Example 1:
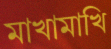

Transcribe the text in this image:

মাখামাখি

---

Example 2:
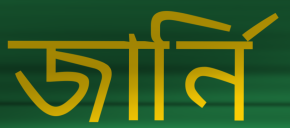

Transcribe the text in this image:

জার্নি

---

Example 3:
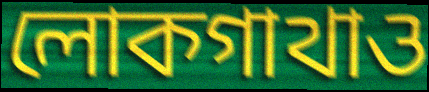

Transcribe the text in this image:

লোকগাথাও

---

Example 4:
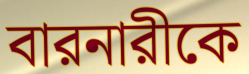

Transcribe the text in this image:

বারনারীকে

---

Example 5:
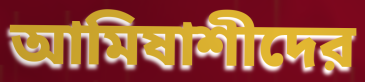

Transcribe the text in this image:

আমিষাশীদের